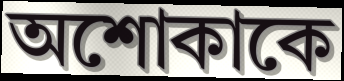
অশোকাকে